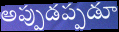
అప్పుడప్పడూ